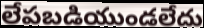
లేపబడియుండలేదు